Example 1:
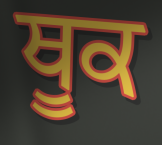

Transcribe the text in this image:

ਥੂਕ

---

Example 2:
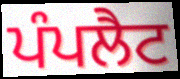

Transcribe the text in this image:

ਪੰਪਲੈਟ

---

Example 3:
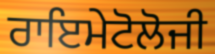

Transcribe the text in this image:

ਰਾਇਮੇਟੋਲੋਜੀ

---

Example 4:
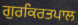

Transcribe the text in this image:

ਗੁਰਕਿਰਤਪਾਲ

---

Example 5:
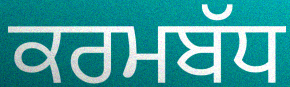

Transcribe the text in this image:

ਕਰਮਬੱਧ